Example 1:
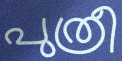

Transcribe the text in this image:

പുത്രീ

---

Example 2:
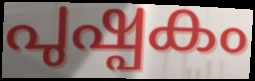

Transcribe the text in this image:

പുഷ്പകം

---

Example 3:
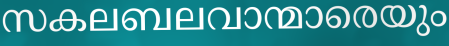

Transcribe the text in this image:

സകലബലവാന്മാരെയും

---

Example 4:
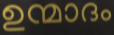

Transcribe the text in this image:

ഉന്മാദം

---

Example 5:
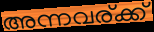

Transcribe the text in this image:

അന്നവര്ക്ക്